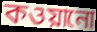
কওয়ানো